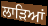
ਲਾੜਿਆਂ